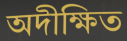
অদীক্ষিত